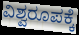
ವಿಶ್ವರೂಪಕ್ಕೆ